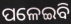
ପଳେଇବି